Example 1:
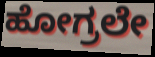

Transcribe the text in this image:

ಹೋಗ್ರಲೇ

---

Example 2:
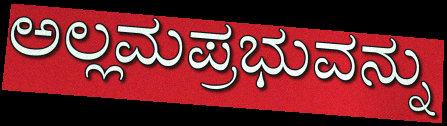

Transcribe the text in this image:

ಅಲ್ಲಮಪ್ರಭುವನ್ನು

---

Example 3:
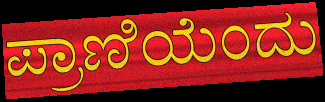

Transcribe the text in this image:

ಪ್ರಾಣಿಯೆಂದು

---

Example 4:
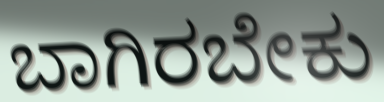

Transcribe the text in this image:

ಬಾಗಿರಬೇಕು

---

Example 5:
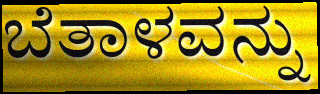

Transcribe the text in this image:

ಬೆತಾಳವನ್ನು